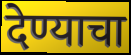
देण्याचा